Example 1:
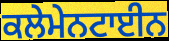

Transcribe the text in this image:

ਕਲੇਮੇਨਟਾਈਨ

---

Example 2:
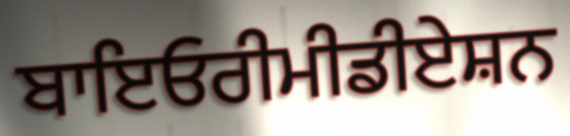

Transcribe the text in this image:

ਬਾਇਓਰੀਮੀਡੀਏਸ਼ਨ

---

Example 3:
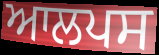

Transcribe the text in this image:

ਆਲਪਸ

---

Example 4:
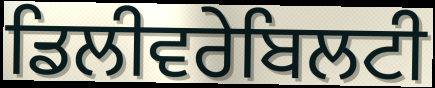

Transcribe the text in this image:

ਡਿਲੀਵਰੇਬਿਲਟੀ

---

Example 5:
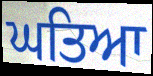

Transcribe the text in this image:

ਘਤਿਆ